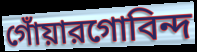
গোঁয়ারগোবিন্দ